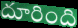
దూరింది